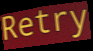
Retry